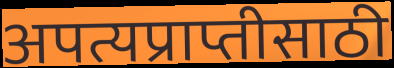
अपत्यप्राप्तीसाठी